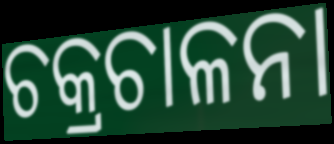
ଚକ୍ରଚାଳନା